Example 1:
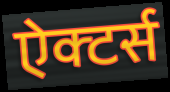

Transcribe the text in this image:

ऐक्‍टर्स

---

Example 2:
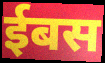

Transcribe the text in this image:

ईबस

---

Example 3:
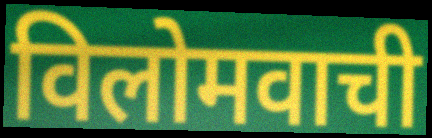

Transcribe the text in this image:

विलोमवाची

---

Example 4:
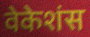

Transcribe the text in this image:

वेकेशंस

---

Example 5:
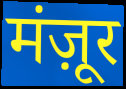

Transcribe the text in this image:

मंज़ूर